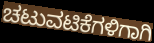
ಚಟುವಟಿಕೆಗಳಿಗಾಗಿ